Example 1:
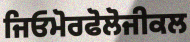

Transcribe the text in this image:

ਜਿਓਮੋਰਫੋਲੋਜੀਕਲ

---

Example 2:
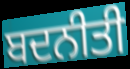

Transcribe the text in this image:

ਬਦਨੀਤੀ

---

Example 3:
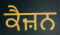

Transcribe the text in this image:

ਕੈਜ਼ਨ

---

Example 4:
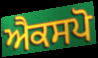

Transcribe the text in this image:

ਐਕਸਪੋ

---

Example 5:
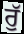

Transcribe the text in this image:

ਰੁੱ